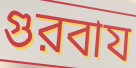
গুরবায